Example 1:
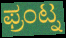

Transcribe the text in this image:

ಫ್ರಂಟ್ನ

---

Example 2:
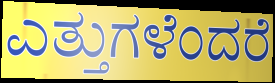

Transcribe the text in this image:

ಎತ್ತುಗಳೆಂದರೆ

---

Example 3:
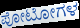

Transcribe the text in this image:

ಪೋಟೋಗಳ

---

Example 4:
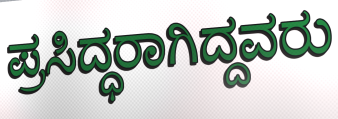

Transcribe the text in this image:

ಪ್ರಸಿದ್ಧರಾಗಿದ್ದವರು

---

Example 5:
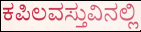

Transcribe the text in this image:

ಕಪಿಲವಸ್ತುವಿನಲ್ಲಿ